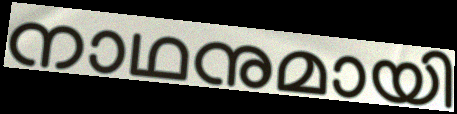
നാഥനുമായി